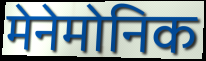
मेनेमोनिक